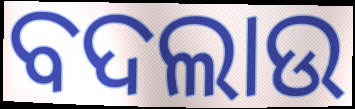
ବଦଲାଉ